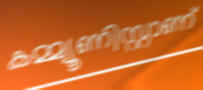
കമ്മ്യൂണിസ്റ്റാണ്